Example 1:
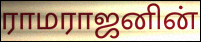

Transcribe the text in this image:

ராமராஜனின்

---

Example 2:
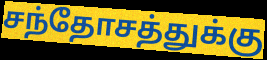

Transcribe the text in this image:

சந்தோசத்துக்கு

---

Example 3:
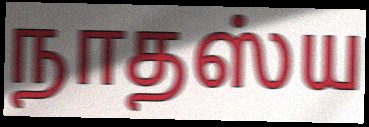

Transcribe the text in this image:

நாதஸ்ய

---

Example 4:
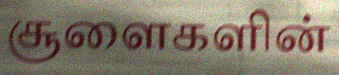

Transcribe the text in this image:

சூளைகளின்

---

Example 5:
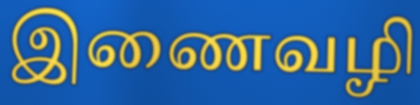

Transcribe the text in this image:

இணைவழி